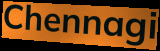
Chennagi